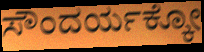
ಸೌಂದರ್ಯಕ್ಕೋ